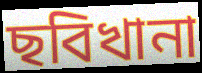
ছবিখানা